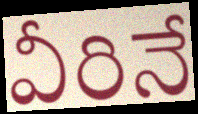
వీరినే